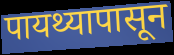
पायथ्यापासून